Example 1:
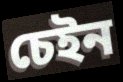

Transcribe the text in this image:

চেইন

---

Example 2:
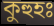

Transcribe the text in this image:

কুহুহঃ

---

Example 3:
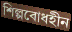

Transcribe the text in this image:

শিল্পবোধহীন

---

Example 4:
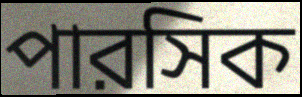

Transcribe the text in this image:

পারসিক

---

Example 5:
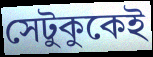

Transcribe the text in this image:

সেটুকুকেই